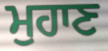
ਮੁਹਾਣ